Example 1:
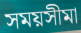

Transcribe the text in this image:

সময়সীমা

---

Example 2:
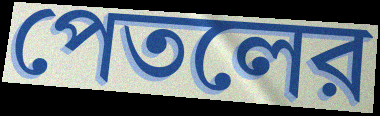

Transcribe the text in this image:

পেতলের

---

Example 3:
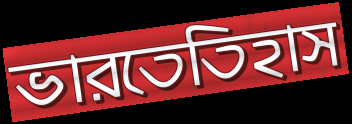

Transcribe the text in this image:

ভারতেতিহাস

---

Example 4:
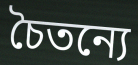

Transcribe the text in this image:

চৈতন্যে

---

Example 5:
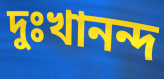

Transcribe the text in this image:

দুঃখানন্দ